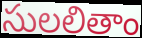
సులలితాం